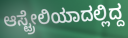
ಆಸ್ಟ್ರೇಲಿಯಾದಲ್ಲಿದ್ದ